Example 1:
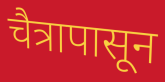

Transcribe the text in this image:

चैत्रापासून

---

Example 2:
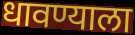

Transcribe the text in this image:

धावण्याला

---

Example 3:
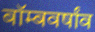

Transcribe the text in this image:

बॉम्बवर्षांव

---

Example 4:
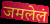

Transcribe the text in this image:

जमलेलं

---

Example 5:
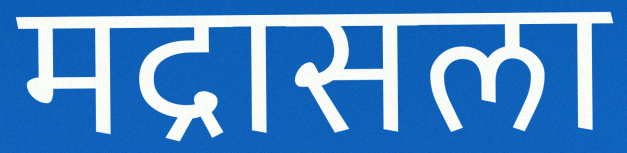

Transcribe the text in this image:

मद्रासला